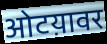
ओटय़ावर